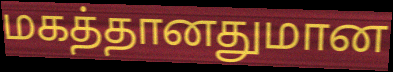
மகத்தானதுமான